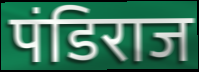
पंडिराज